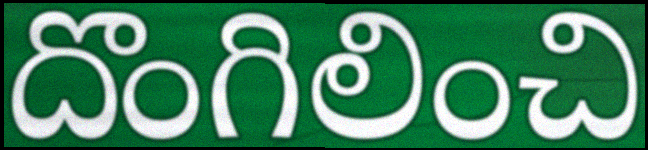
దొంగిలించి